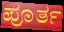
ಪೂರ್ತ